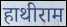
हाथीराम